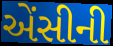
એંસીની